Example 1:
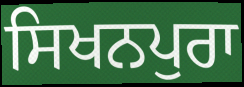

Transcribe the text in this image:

ਸਿਖਨਪੁਰਾ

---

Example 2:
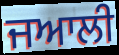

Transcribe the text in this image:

ਜਆਲੀ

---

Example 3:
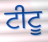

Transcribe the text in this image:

ਟੀਟੂ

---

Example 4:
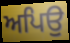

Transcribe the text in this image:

ਅਪਿਉ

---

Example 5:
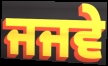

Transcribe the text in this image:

ਜਜਵੇ